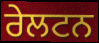
ਰੇਲਟਨ